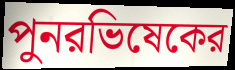
পুনরভিষেকের